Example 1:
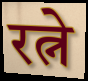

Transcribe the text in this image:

रत्ने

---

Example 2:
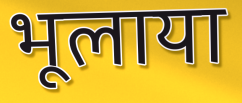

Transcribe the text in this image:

भूलाया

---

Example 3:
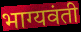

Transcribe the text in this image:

भाग्यवंती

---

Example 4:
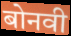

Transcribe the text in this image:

बोनवी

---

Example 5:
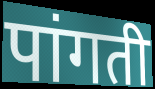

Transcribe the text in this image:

पांगती